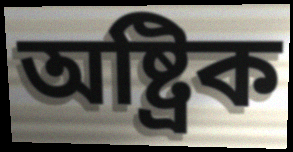
অষ্ট্ৰিক